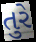
તુરે